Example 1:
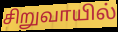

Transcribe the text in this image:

சிறுவாயில்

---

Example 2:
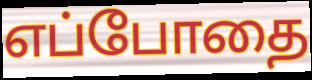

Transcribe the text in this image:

எப்போதை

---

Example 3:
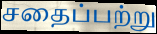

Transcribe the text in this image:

சதைப்பற்று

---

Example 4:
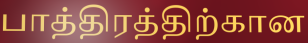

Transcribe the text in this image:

பாத்திரத்திற்கான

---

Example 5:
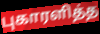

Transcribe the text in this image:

புகாரளித்த